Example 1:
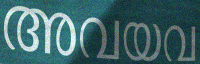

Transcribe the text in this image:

അവയവ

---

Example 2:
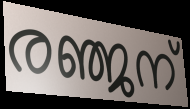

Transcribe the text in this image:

രഞ്ജന്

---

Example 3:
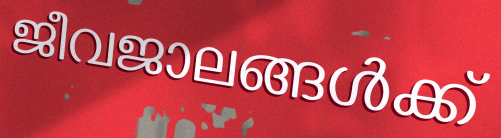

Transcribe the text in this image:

ജീവജാലങ്ങൾക്ക്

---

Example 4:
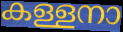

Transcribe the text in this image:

കള്ളനാ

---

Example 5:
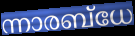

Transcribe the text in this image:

ന്നാരബ്ധേ